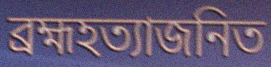
ব্রহ্মহত্যাজনিত